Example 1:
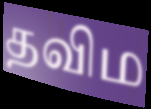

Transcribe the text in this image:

தவிம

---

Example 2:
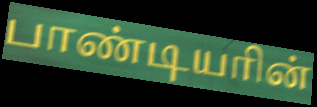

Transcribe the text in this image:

பாண்டியரின்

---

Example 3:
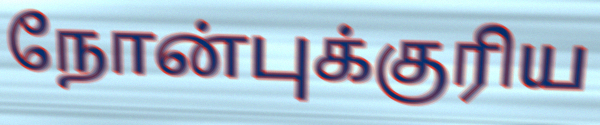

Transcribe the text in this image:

நோன்புக்குரிய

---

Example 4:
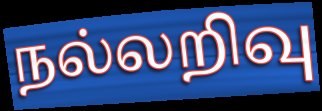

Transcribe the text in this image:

நல்லறிவு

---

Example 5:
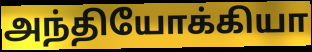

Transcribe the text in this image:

அந்தியோக்கியா